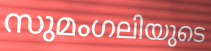
സുമംഗലിയുടെ